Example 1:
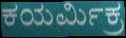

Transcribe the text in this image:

ಕಯರ್ಮಿಕ್ರ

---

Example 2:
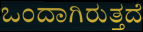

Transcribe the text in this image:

ಒಂದಾಗಿರುತ್ತದೆ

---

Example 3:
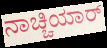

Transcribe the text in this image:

ನಾಚ್ಚಿಯಾರ್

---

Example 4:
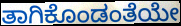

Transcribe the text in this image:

ತಾಗಿಕೊಂಡಂತೆಯೇ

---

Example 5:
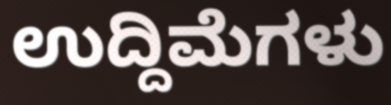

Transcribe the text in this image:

ಉದ್ದಿಮೆಗಳು